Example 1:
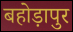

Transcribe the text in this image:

बहोड़ापुर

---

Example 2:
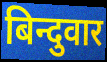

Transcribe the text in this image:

बिन्दुवार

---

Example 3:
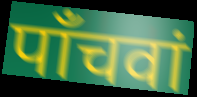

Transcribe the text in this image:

पाँचवां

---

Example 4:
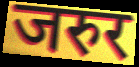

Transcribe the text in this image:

जरुर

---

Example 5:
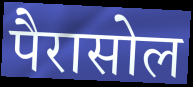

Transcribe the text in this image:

पैरासोल